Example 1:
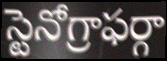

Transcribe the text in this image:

స్టెనోగ్రాఫర్గా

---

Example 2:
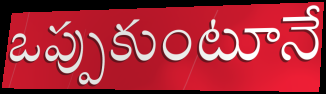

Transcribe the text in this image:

ఒప్పుకుంటూనే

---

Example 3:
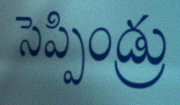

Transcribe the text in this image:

సెప్పిండ్రు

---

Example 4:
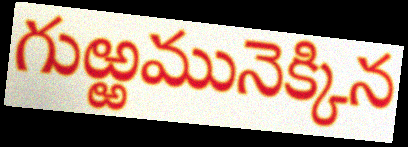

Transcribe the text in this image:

గుఱ్ఱమునెక్కిన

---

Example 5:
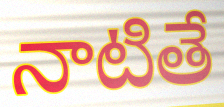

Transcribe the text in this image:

నాటితే